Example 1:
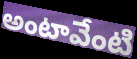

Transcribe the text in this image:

అంటావేంటి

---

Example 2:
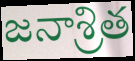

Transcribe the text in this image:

జనాశ్రిత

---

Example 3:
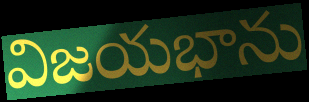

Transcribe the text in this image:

విజయభాను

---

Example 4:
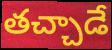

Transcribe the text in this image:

తచ్చాడే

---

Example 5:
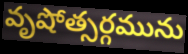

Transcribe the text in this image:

వృషోత్సర్గమును